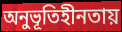
অনুভূতিহীনতায়